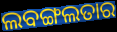
ଲବଙ୍ଗଲତାର